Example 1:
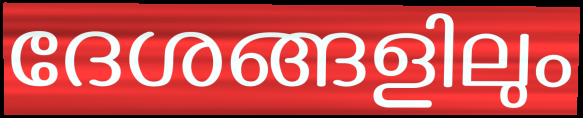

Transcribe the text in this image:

ദേശങ്ങളിലും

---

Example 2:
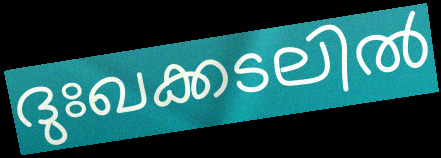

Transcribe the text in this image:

ദുഃഖക്കടലിൽ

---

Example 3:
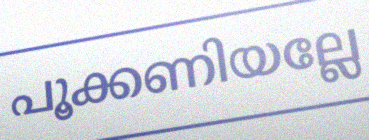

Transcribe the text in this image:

പൂക്കണിയല്ലേ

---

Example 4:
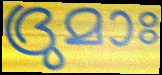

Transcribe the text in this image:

ദ്രുമാഃ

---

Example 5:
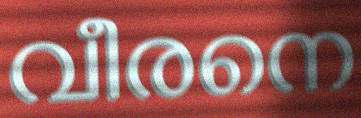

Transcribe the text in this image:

വീരനെ